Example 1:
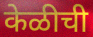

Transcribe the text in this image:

केळीची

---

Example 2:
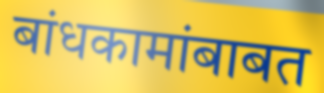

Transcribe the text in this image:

बांधकामांबाबत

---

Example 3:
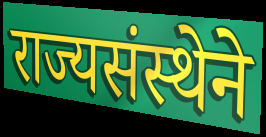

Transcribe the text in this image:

राज्यसंस्थेने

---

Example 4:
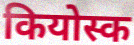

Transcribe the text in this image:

कियोस्क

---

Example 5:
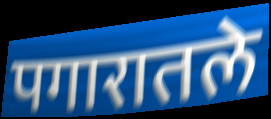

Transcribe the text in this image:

पगारातले